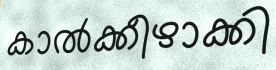
കാൽക്കീഴാക്കി